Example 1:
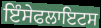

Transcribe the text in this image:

ਇੰਸੇਫਲਾਇਟਸ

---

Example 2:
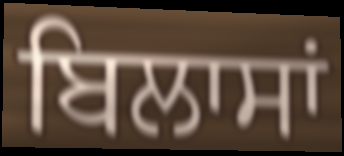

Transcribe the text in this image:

ਬਿਲਾਸਾਂ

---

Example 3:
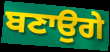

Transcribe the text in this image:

ਬਣਾਉਗੇ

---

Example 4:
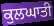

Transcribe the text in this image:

ਕੁਲਘਾਤੀ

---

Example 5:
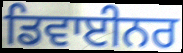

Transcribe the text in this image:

ਡਿਵਾਈਨਰ